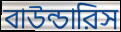
বাউন্ডারিস